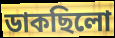
ডাকছিলো